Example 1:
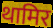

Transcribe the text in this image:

थामिर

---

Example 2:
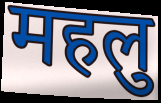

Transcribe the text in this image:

महलु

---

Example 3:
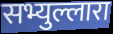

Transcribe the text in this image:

सभ्युल्लारा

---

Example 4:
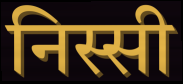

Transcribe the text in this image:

निस्सी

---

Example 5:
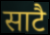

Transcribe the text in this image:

साटै